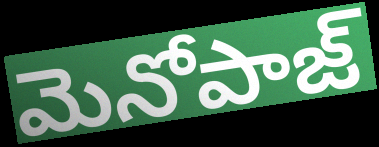
మెనోపాజ్